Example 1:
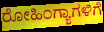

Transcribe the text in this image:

ರೋಹಿಂಗ್ಯಾಗಳಿಗೆ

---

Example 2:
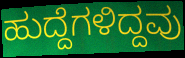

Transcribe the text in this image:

ಹುದ್ದೆಗಳಿದ್ದವು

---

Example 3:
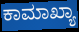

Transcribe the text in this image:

ಕಾಮಾಖ್ಯಾ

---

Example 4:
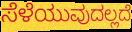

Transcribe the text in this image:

ಸೆಳೆಯುವುದಲ್ಲದೆ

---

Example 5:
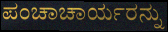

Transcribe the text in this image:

ಪಂಚಾಚಾರ್ಯರನ್ನು